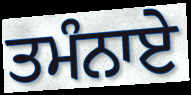
ਤਮੰਨਾਏ